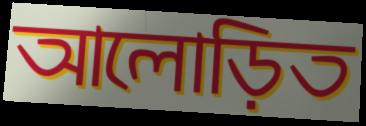
আলোড়িত